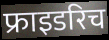
फ्राइडरिच